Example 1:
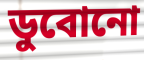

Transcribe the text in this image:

ডুবোনো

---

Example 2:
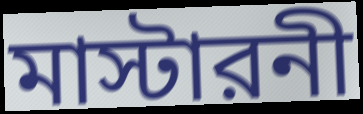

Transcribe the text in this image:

মাস্টারনী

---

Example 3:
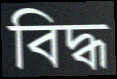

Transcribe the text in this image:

বিদ্ধ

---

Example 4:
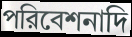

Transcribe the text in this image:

পরিবেশনাদি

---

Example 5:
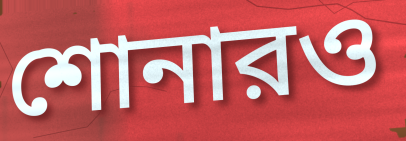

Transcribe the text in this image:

শোনারও